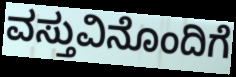
ವಸ್ತುವಿನೊಂದಿಗೆ